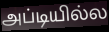
அப்டியில்ல